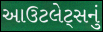
આઉટલેટ્સનું